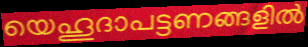
യെഹൂദാപട്ടണങ്ങളിൽ